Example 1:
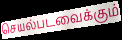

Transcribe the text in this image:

செயல்படவைக்கும்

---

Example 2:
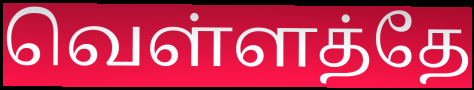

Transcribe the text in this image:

வெள்ளத்தே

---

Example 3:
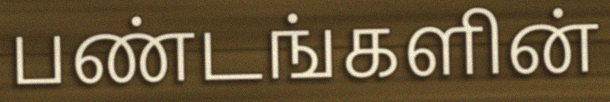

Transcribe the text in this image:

பண்டங்களின்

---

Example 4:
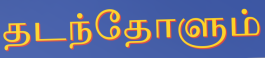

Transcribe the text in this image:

தடந்தோளும்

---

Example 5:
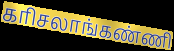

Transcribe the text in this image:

கரிசலாங்கண்ணி